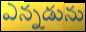
ఎన్నడును